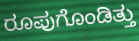
ರೂಪುಗೊಂಡಿತ್ತು